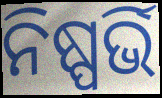
ନିଷ୍ପର୍ଭି